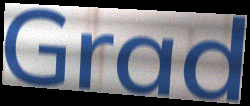
Grad